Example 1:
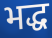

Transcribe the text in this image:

भद्ध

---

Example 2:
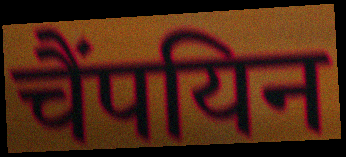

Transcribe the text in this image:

चैंपयिन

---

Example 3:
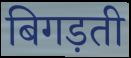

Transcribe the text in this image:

बिगड़ती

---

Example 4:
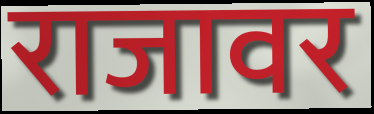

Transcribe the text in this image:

राजावर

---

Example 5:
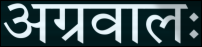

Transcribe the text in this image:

अग्रवालः